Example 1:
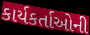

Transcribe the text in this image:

કાર્યકર્તાઓની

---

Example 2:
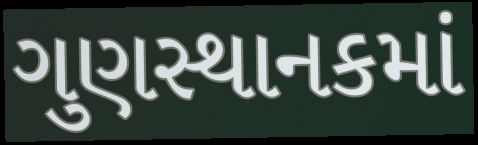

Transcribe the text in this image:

ગુણસ્થાનકમાં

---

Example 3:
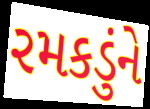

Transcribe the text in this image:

રમકડુંને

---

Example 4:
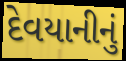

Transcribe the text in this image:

દેવયાનીનું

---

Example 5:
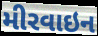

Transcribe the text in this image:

મીરવાઇન